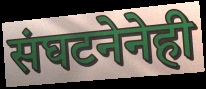
संघटनेनेही